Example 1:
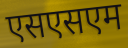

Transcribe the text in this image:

एसएसएम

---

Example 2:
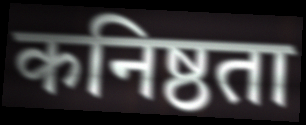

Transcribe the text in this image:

कनिष्ठता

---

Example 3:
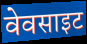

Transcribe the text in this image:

वेवसाइट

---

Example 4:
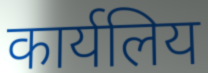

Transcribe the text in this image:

कार्यलिय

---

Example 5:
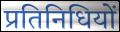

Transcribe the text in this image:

प्रतिनिधियों